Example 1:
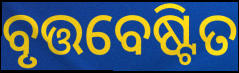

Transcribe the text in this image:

ବୃତ୍ତବେଷ୍ଟିତ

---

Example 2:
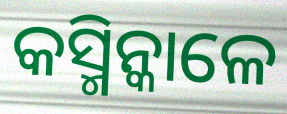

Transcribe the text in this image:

କସ୍ମିନ୍କାଳେ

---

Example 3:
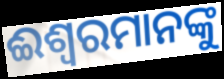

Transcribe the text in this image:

ଈଶ୍ୱରମାନଙ୍କୁ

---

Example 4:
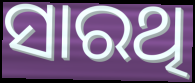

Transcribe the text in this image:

ସାରଥି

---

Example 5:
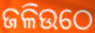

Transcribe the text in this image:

ଜଳିଉଠେ